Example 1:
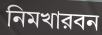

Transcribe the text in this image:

নিমখারবন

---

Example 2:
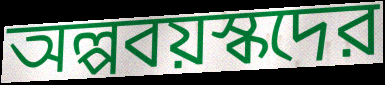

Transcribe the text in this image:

অল্পবয়স্কদের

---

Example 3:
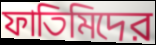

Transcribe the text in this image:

ফাতিমিদের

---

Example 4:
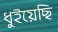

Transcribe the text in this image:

ধুইয়েছি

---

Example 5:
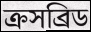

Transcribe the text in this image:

ক্রসব্রিড